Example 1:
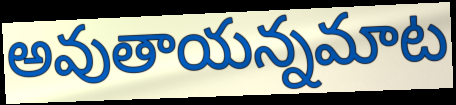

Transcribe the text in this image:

అవుతాయన్నమాట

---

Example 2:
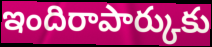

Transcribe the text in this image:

ఇందిరాపార్కుకు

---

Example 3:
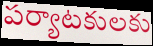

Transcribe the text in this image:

పర్యాటకులకు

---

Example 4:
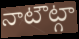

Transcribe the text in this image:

నాటౌట్గా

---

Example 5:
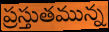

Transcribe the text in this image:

ప్రస్తుతమున్న